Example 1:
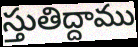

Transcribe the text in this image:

స్తుతిద్దాము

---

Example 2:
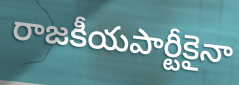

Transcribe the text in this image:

రాజకీయపార్టీకైనా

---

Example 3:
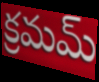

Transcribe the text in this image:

క్రమమ్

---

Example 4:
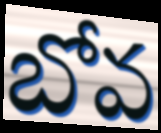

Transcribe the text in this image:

బోవ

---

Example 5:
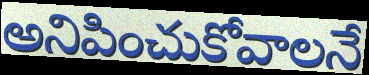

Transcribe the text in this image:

అనిపించుకోవాలనే